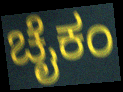
ಚೈಕಂ